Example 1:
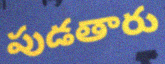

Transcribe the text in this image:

పుడతారు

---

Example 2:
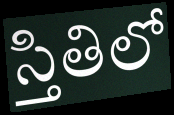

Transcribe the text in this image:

స్తితిలో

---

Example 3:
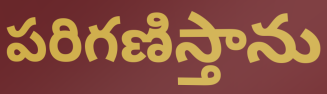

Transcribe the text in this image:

పరిగణిస్తాను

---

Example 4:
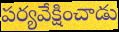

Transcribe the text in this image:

పర్యవేక్షించాడు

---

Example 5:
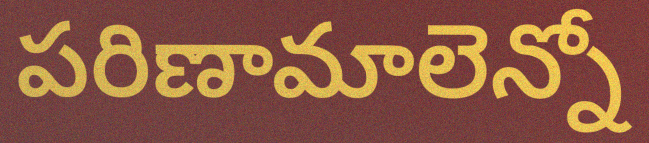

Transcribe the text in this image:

పరిణామాలెన్నో